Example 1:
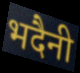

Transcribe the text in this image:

भदैनी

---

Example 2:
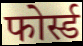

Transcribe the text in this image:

फोर्स्ड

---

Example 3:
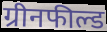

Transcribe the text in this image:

ग्रीनफील्ड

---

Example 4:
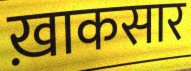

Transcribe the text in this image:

ख़ाकसार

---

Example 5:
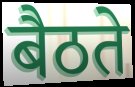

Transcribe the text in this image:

बैठते